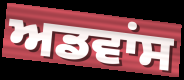
ਅਡਵਾਂਸ